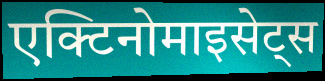
एक्टिनोमाइसेट्स